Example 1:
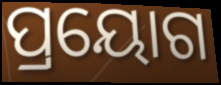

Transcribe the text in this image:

ପ୍ରୟୋଗ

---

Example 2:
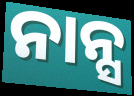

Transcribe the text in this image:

ନାନ୍ସ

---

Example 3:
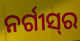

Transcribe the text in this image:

ନର୍ଗୀସ୍‍ର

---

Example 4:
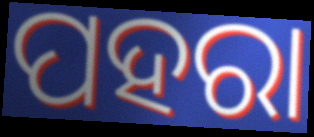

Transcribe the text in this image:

ପହରା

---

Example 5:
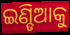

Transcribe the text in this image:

ଇଣ୍ଡିଆକୁ